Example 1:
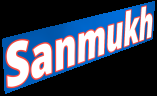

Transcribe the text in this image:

Sanmukh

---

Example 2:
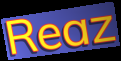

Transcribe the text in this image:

Reaz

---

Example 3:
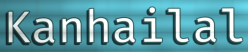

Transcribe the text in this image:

Kanhailal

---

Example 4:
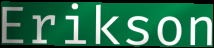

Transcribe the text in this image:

Erikson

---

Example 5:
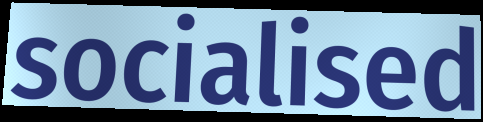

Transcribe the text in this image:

socialised